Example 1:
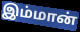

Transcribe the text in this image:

இம்மான்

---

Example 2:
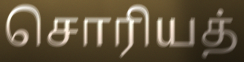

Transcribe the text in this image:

சொரியத்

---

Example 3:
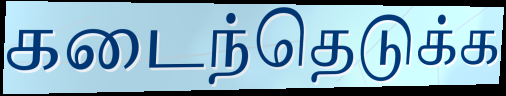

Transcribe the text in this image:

கடைந்தெடுக்க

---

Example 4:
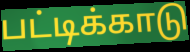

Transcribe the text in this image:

பட்டிக்காடு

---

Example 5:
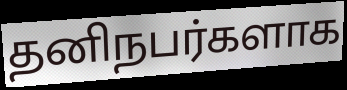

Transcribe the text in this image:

தனிநபர்களாக